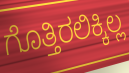
ಗೊತ್ತಿರಲಿಕ್ಕಿಲ್ಲ